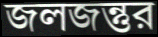
জলজন্তুর